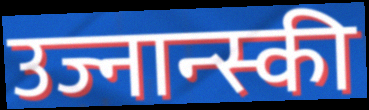
उज्नान्स्की